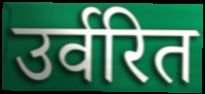
उर्वरित